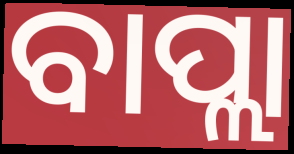
ବାପ୍ଲା